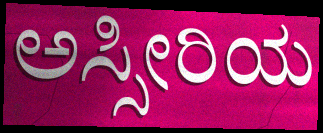
ಅಸ್ಸೀರಿಯ